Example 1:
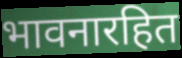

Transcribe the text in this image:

भावनारहित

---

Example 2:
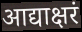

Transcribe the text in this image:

आद्याक्षरं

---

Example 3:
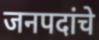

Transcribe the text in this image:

जनपदांचे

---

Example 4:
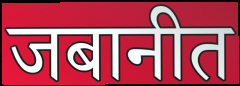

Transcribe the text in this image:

जबानीत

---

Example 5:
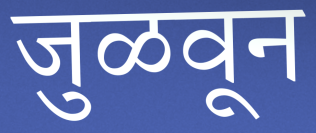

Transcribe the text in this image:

जुळवून